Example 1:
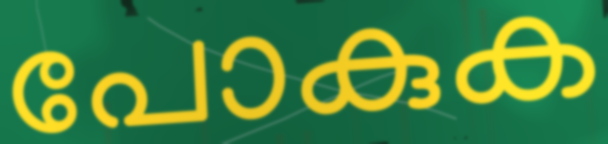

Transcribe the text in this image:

പോകുക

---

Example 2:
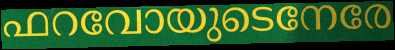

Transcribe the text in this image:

ഫറവോയുടെനേരേ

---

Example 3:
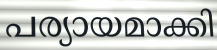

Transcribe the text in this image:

പര്യായമാക്കി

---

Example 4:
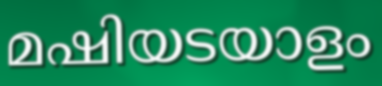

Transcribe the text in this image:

മഷിയടയാളം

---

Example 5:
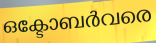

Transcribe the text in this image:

ഒക്ടോബർവരെ